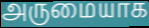
அருமையாக